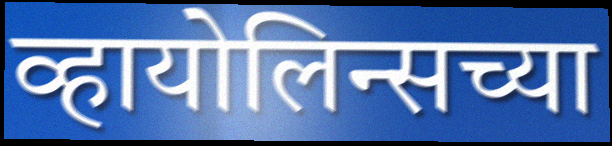
व्हायोलिन्सच्या